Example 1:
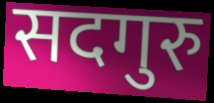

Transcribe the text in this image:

सदगुरु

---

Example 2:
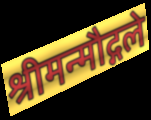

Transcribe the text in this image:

श्रीमन्मौद्गले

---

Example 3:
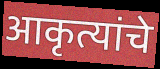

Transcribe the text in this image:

आकृत्यांचे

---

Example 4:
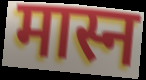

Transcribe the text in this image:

मास्न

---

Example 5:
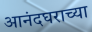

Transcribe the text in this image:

आनंदघराच्या